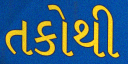
તકોથી